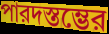
পারদস্তম্ভের